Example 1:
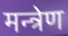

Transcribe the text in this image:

मन्त्रेण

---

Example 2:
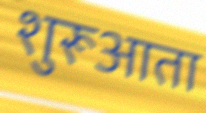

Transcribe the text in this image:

शुरूआता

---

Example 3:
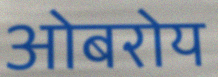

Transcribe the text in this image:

ओबरोय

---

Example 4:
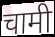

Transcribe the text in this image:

चामी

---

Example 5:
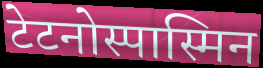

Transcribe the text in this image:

टेटनोस्पास्मिन